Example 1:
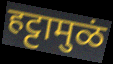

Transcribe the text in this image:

हट्टामुळं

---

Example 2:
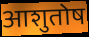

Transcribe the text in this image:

आशुतोष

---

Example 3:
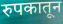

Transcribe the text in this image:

रुपकातून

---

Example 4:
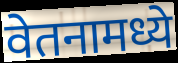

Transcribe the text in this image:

वेतनामध्ये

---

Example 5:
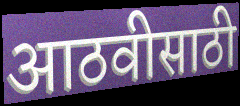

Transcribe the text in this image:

आठवीसाठी